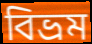
বিভ্রম